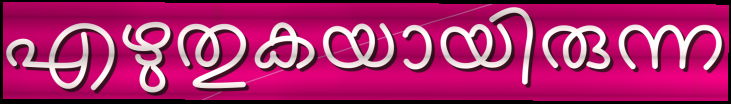
എഴുതുകയായിരുന്ന